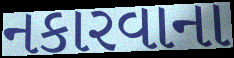
નકારવાના